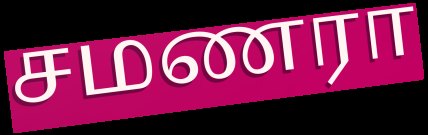
சமணரா